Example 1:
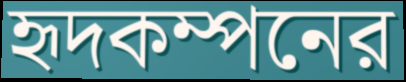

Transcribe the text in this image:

হৃদকম্পনের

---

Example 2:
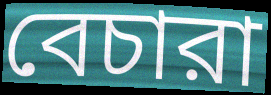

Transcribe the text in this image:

বেচারা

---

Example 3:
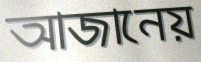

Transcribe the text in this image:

আজানেয়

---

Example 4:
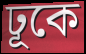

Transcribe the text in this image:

ঢূকে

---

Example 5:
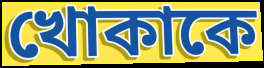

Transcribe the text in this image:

খোকাকে